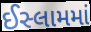
ઈસ્લામમાં